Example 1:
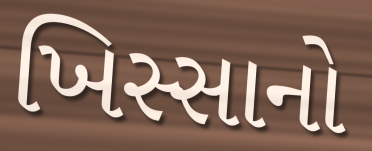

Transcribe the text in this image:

ખિસ્સાનો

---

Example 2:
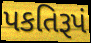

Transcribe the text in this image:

પકતિરૂપં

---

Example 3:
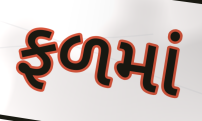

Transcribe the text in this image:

ફળમાં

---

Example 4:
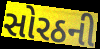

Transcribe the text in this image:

સોરઠની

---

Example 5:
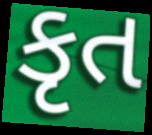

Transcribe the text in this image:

કૃત